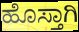
ಹೊಸ್ತಾಗಿ